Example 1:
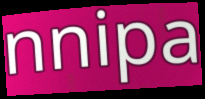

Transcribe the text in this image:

nnipa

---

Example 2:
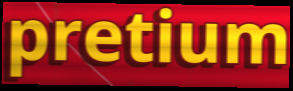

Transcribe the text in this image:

pretium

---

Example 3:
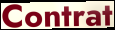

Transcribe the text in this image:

Contrat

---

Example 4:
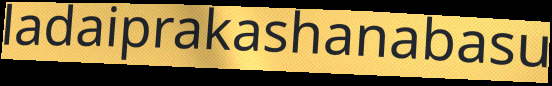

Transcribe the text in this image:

ladaiprakashanabasu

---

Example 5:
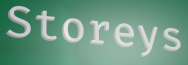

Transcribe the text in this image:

Storeys